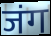
जंग